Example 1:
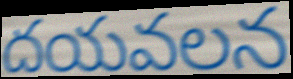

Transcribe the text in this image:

దయవలన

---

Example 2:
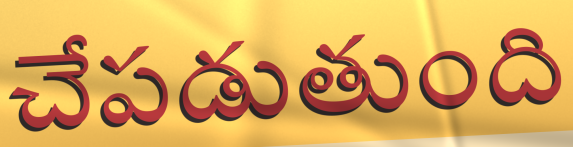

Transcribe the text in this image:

చేపడుతుంది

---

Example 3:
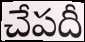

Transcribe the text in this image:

చేపదీ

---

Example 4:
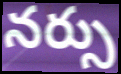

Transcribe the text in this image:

నర్సు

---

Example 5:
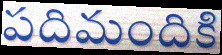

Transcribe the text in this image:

పదిమందికి